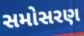
સમોસરણ